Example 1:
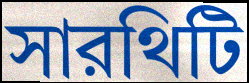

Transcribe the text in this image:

সারথিটি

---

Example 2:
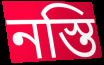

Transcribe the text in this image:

নস্তি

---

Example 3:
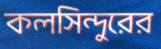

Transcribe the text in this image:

কলসিন্দুরের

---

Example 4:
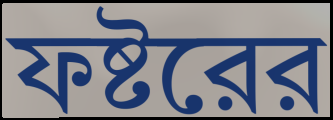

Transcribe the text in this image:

ফষ্টরের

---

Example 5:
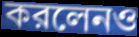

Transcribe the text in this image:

করলেনও